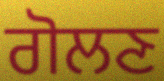
ਗੋਲਣ